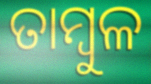
ତାମ୍ୱୁଳ